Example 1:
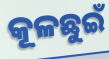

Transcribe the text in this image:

କୂଳଛୁଇଁ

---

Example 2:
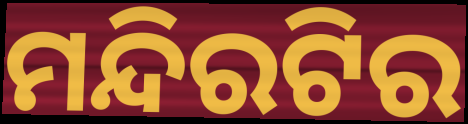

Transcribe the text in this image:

ମନ୍ଦିରଟିର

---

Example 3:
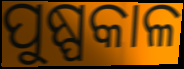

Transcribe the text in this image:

ପୁଷ୍ପକାଳ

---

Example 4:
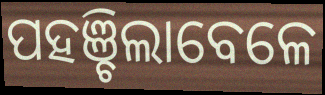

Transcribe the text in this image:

ପହଞ୍ଚିଲାବେଳେ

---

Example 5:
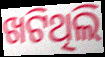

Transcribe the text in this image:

ଖଟିଥିଲି